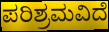
ಪರಿಶ್ರಮವಿದೆ